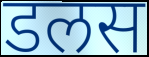
डलस